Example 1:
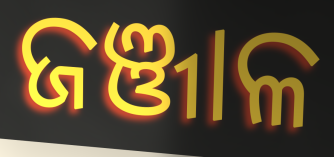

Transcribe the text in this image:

ଜଞ୍ଜାଳ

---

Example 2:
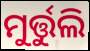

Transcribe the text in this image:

ମୁର୍ତ୍ତୁଲି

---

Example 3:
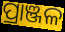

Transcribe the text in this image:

ପ୍ରାଞ୍ଜଳ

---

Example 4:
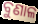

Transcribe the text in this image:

ବୁଣାଳ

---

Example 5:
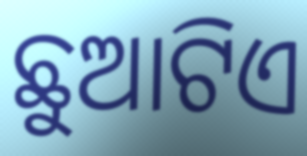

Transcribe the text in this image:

ଛୁଆଟିଏ